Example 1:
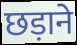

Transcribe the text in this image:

छड़ाने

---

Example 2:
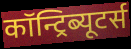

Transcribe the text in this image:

कॉन्ट्रिब्यूटर्स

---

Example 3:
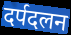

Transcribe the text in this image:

दर्पदलन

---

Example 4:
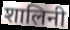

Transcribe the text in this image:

शालिनी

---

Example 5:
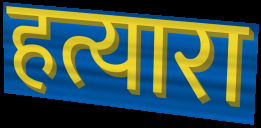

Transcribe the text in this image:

हत्यारा